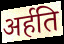
अर्हति